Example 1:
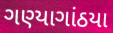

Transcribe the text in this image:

ગણ્યાગાંઠયા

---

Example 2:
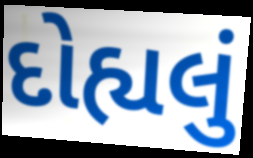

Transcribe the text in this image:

દોહ્યલું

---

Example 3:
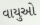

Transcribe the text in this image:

વાયુઓ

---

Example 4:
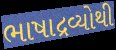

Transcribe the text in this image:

ભાષાદ્રવ્યોથી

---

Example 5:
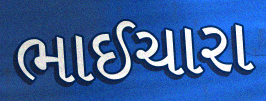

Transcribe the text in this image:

ભાઈચારા